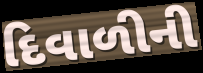
દિવાળીની